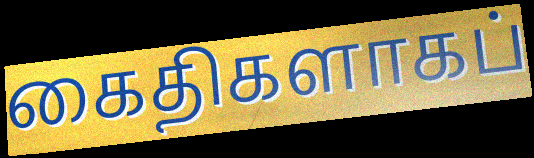
கைதிகளாகப்